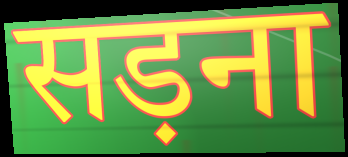
सड़ना